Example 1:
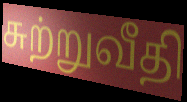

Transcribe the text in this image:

சுற்றுவீதி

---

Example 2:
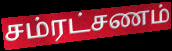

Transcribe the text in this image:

சம்ரட்சணம்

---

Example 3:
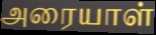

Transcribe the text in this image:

அரையாள்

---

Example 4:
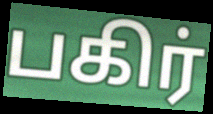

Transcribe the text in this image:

பகிர்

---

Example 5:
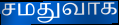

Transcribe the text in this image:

சமதுவாக